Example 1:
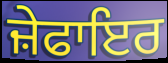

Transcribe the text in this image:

ਜ਼ੇਫਾਇਰ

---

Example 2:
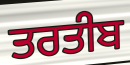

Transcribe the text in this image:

ਤਰਤੀਬ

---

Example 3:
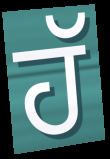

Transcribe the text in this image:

ਹੱ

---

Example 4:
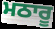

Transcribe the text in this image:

ਮਠਾਰੂ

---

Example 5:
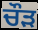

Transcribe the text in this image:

ਚੌੜ